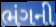
ભંગની